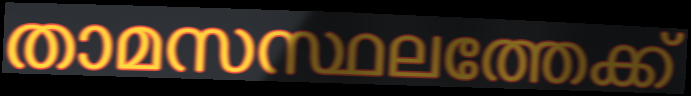
താമസസ്ഥലത്തേക്ക്